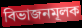
বিভাজনমূলক